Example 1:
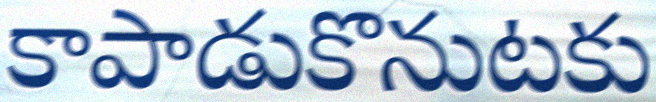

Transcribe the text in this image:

కాపాడుకొనుటకు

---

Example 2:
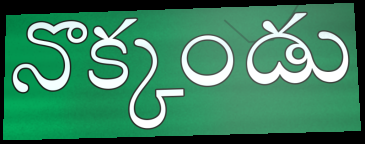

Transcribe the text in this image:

నొక్కండు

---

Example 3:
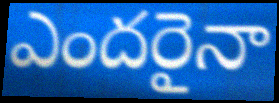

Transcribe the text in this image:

ఎందరైనా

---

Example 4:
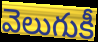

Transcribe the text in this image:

వెలుగుకీ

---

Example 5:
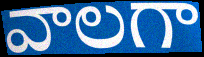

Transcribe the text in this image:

వాలగా